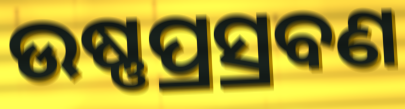
ଉଷ୍ଣପ୍ରସ୍ରବଣ